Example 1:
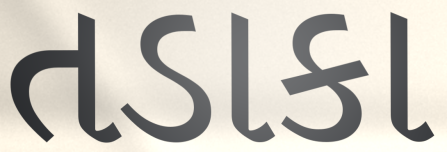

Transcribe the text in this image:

તડાકા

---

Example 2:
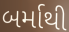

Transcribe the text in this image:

બર્માથી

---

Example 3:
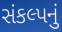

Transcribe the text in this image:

સંકલ્પનું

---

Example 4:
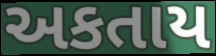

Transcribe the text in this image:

અકતાય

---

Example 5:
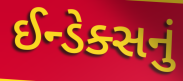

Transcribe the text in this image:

ઈન્ડેક્સનું